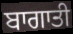
ਬਾਗਾਤੀ